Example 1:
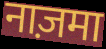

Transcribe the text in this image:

नाज़मा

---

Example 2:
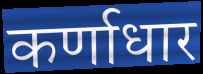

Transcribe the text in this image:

कर्णाधार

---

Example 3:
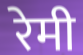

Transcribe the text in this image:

रेमी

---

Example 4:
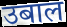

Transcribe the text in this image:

उबाल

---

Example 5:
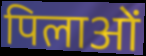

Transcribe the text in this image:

पिलाओं